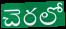
చెరలో